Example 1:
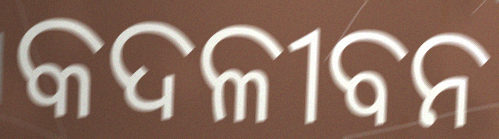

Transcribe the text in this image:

କଦଳୀବନ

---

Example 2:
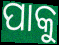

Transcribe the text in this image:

ପାକୁ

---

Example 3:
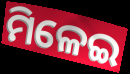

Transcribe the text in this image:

ମିଳେଇ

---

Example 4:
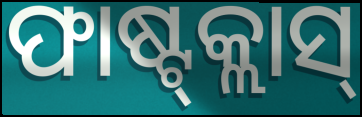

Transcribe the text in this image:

ଫାଷ୍ଟ୍‍କ୍ଲାସ୍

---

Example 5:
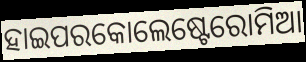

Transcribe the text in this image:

ହାଇପରକୋଲେଷ୍ଟେରୋମିଆ